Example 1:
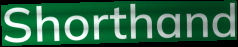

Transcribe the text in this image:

Shorthand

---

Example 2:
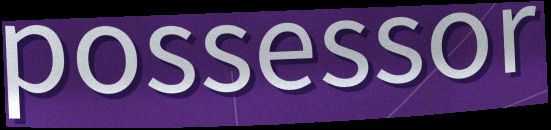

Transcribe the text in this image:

possessor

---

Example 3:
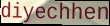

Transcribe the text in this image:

diyechhen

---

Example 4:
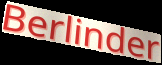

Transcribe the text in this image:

Berlinder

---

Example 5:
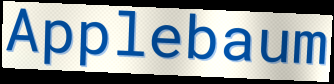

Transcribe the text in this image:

Applebaum